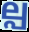
ല്പ